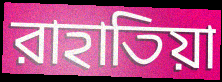
রাহাতিয়া